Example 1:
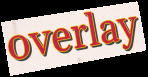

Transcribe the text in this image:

overlay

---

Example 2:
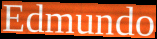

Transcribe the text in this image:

Edmundo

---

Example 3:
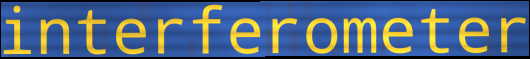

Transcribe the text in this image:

interferometer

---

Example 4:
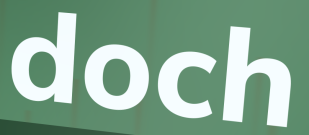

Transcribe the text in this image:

doch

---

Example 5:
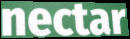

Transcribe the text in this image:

nectar